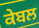
ਕੇਬਲ